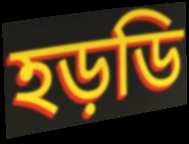
হড়ডি